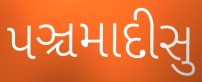
પઞ્ચમાદીસુ